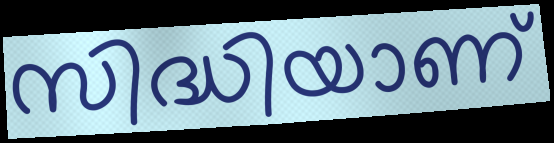
സിദ്ധിയാണ്